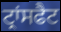
ਟ੍ਰਾਂਸਫੈਟ